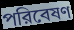
পরিবেষণ